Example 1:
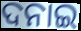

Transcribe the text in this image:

ଦନାଇ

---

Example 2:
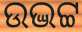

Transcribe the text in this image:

ଉଦ୍ଭଟ୍ଟ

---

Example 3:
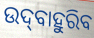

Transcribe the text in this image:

ଉଦ୍‌ବାହୁରିବ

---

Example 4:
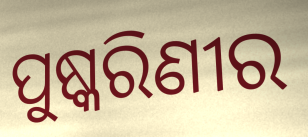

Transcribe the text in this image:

ପୁଷ୍କରିଣୀର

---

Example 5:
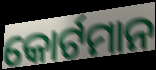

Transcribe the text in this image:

କୋର୍ଟମାନ